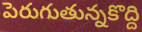
పెరుగుతున్నకొద్ది